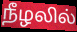
நீழலில்